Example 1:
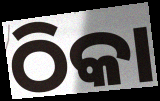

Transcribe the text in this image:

ଠିକା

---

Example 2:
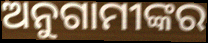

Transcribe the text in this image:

ଅନୁଗାମୀଙ୍କର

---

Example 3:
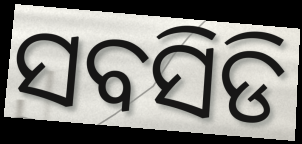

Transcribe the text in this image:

ସବସିଡି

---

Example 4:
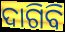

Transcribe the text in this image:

ଦାଗିବି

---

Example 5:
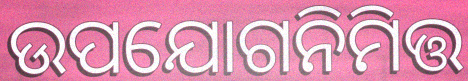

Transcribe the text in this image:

ଉପଯୋଗନିମିତ୍ତ